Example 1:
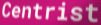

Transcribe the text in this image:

Centrist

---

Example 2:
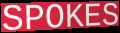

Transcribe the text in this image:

SPOKES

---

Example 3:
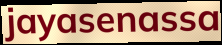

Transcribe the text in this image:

jayasenassa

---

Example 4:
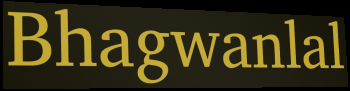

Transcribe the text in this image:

Bhagwanlal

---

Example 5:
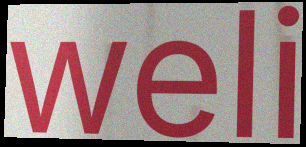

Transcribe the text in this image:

weli